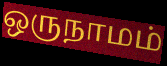
ஒருநாமம்